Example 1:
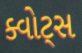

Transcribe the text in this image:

ક્વોટ્સ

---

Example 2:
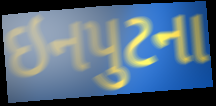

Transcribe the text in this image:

ઇનપુટના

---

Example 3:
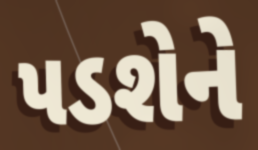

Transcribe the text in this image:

પડશેને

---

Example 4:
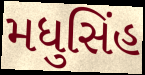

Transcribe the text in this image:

મધુસિંહ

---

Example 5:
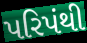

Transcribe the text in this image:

પરિપંથી